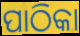
ପାଠିକା